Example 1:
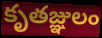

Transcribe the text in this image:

కృతజ్ఞులం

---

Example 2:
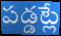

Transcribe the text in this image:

పడ్డట్లే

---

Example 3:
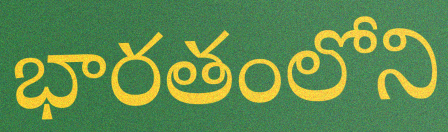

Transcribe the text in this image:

భారతంలోని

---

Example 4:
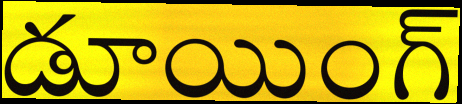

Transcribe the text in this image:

డూయింగ్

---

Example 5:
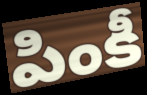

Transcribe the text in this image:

పింకీ